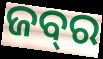
ଜବ୍‍ର